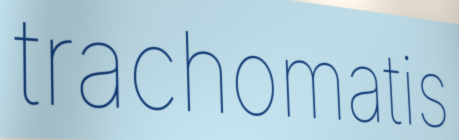
trachomatis